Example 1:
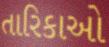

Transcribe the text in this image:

તારિકાઓ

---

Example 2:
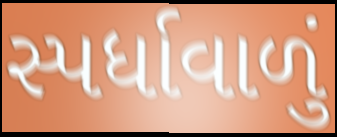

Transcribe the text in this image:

સ્પર્ધાવાળું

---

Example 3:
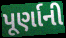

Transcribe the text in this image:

પૂર્ણાની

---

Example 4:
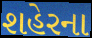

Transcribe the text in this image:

શહેરના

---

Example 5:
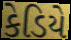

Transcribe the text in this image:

કેડિયે